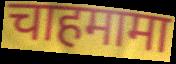
चाहमामा